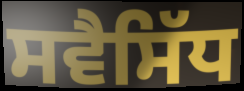
ਸਵੈਸਿੱਧ